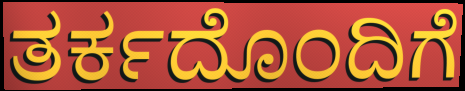
ತರ್ಕದೊಂದಿಗೆ